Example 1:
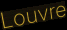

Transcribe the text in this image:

Louvre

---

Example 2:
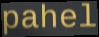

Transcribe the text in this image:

pahel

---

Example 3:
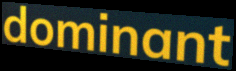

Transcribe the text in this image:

dominant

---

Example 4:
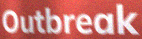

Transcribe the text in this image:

Outbreak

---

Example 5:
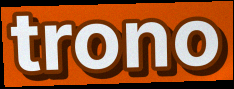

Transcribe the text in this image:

trono